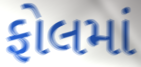
ફોલમાં